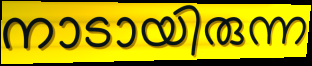
നാടായിരുന്ന